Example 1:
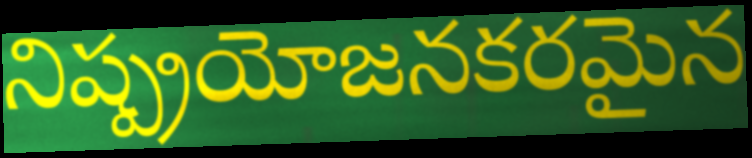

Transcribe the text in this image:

నిష్ప్రయోజనకరమైన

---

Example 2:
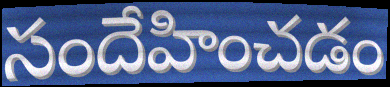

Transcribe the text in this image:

సందేహించడం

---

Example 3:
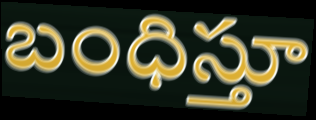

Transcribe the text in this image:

బంధిస్తూ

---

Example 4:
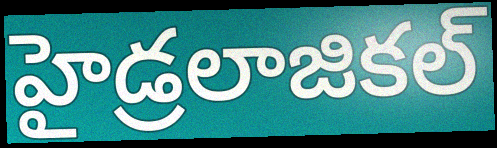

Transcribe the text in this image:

హైడ్రలాజికల్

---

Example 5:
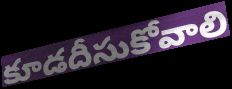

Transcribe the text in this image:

కూడదీసుకోవాలి